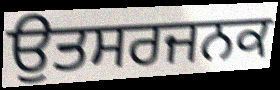
ਉਤਸਰਜਨਕ